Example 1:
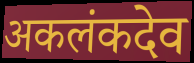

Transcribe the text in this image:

अकलंकदेव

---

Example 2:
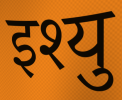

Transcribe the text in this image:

इश्यु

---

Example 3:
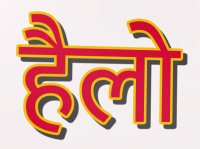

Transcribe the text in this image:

हैलो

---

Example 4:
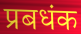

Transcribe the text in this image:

प्रबधंक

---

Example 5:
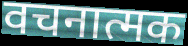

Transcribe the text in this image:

वचनात्मक